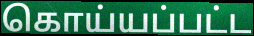
கொய்யப்பட்ட